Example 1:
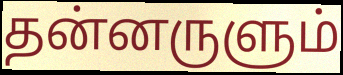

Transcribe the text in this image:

தன்னருளும்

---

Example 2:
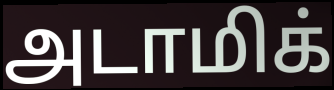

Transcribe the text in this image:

அடாமிக்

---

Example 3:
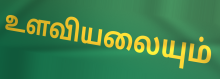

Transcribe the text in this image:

உளவியலையும்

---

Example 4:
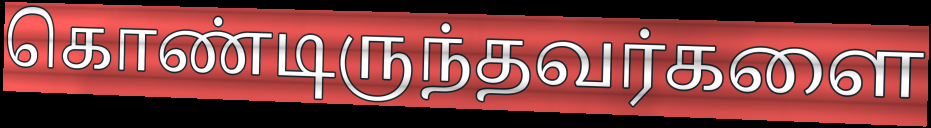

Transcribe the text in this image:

கொண்டிருந்தவர்களை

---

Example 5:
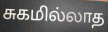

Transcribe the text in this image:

சுகமில்லாத